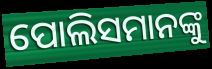
ପୋଲିସମାନଙ୍କୁ